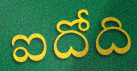
ఐదోది